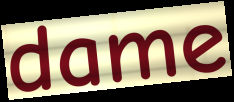
dame